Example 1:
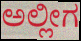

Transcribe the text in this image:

ಅಲ್ಲೀಗ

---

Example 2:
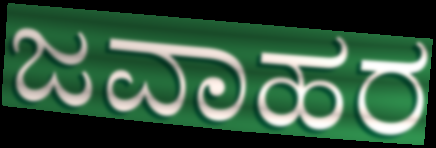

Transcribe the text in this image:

ಜವಾಹರ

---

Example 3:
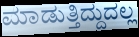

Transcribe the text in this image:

ಮಾಡುತ್ತಿದ್ದುದಲ್ಲ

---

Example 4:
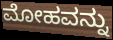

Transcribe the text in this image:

ಮೋಹವನ್ನು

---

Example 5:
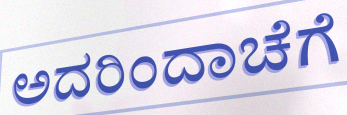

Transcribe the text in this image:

ಅದರಿಂದಾಚೆಗೆ